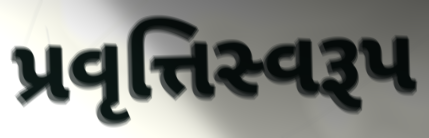
પ્રવૃત્તિસ્વરૂપ